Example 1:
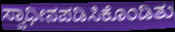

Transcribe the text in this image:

ಸ್ವಾಧೀನಪಡಿಸಿಕೊಂಡಿತು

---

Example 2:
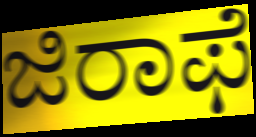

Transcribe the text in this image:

ಜಿರಾಫೆ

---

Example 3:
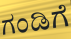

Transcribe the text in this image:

ಗಂಡಿಗೆ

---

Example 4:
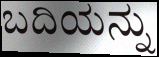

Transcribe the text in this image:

ಬದಿಯನ್ನು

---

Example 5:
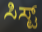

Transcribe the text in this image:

ಸಿಸ್ಟ್